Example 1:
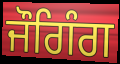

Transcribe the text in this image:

ਜੌਗਿੰਗ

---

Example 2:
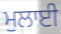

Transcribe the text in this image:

ਮੁਲਾਈ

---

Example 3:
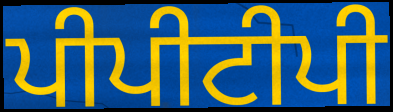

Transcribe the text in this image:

ਪੀਪੀਟੀਪੀ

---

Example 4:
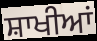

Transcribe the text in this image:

ਸ਼ਾਖੀਆਂ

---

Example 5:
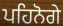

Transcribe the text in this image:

ਪਹਿਨੋਗੇ